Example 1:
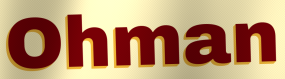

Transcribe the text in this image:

Ohman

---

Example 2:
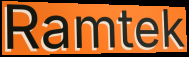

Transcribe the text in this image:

Ramtek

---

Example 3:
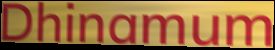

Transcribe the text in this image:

Dhinamum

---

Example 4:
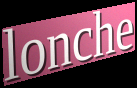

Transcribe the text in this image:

lonche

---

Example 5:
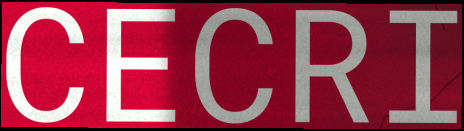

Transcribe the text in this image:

CECRI